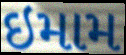
ઇમામ